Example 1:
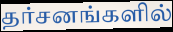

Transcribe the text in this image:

தர்சனங்களில்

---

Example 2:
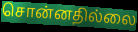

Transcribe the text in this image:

சொன்னதில்லை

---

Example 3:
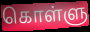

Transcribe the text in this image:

கொள்ளு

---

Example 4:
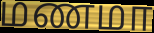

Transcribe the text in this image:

மணமா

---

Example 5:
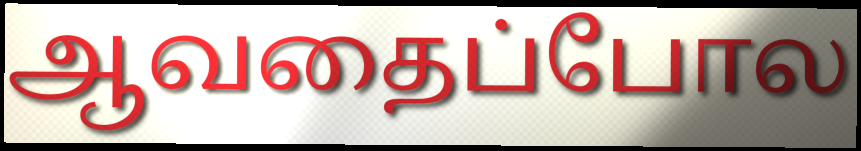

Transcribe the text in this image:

ஆவதைப்போல